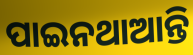
ପାଇନଥାଆନ୍ତି